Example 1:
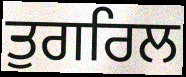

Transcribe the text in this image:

ਤੁਗਰਿਲ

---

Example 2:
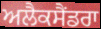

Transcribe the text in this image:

ਅਲੈਕਸੈਂਡਰਾ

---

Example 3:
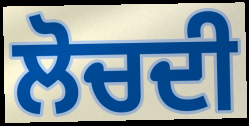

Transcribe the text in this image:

ਲੋਚਦੀ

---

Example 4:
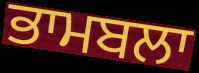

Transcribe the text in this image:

ਭਾਮਬਲਾ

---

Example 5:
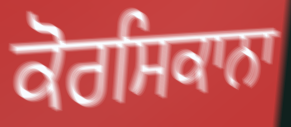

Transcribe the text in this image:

ਕੋਰਸਿਕਾਨਾ